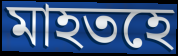
মাহতহে